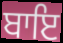
ਬਾਇ